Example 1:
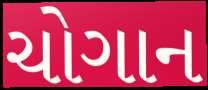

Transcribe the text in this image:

ચોગાન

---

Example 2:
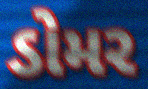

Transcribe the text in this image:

ડોમર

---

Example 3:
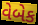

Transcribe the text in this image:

વેબેક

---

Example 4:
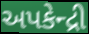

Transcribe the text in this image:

અપકેન્દ્રી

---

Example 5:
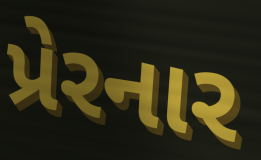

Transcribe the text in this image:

પ્રેરનાર